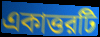
একাত্তরটি